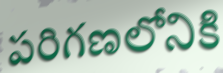
పరిగణలోనికి